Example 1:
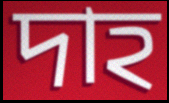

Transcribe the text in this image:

দাহ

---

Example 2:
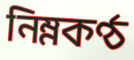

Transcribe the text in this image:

নিম্নকণ্ঠ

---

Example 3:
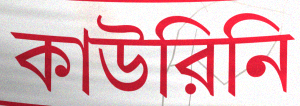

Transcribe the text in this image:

কাউরিনি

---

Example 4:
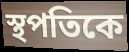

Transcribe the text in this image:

স্থপতিকে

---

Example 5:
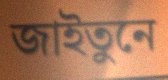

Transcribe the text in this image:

জাইতুনে